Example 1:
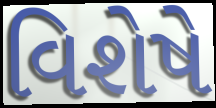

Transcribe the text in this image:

વિશેષે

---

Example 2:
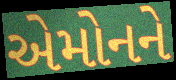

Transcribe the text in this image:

એમોનને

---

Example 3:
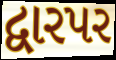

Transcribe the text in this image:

દ્વારપર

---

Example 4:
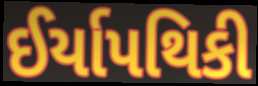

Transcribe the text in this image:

ઈર્યાપથિકી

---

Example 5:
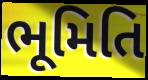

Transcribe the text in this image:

ભૂમિતિ